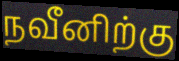
நவீனிற்கு